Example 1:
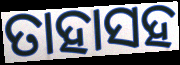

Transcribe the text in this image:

ତାହାସହ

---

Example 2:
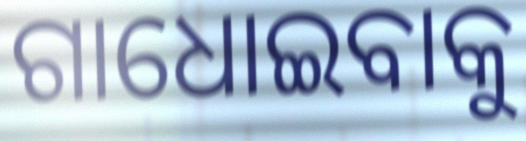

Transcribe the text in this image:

ଗାଧୋଇବାକୁ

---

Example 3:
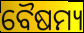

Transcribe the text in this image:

ବୈଷମ୍ୟ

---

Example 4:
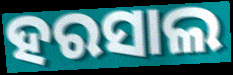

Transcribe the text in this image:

ହରସାଲ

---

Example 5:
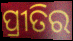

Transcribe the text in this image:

ପ୍ରୀତିର